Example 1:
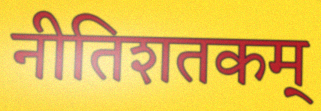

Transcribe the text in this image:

नीतिशतकम्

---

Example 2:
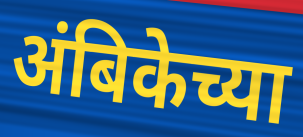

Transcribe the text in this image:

अंबिकेच्या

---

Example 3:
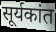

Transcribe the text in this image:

सूर्यकांत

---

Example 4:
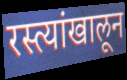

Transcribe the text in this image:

रस्त्यांखालून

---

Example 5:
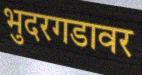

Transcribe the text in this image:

भुदरगडावर